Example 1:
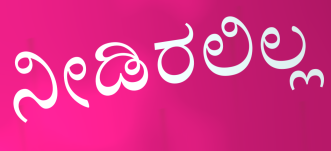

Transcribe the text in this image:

ನೀಡಿರಲಿಲ್ಲ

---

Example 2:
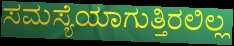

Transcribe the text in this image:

ಸಮಸ್ಯೆಯಾಗುತ್ತಿರಲಿಲ್ಲ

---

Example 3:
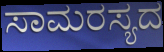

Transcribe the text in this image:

ಸಾಮರಸ್ಯದ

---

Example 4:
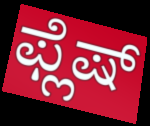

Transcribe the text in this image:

ಫ್ಲೆಷ್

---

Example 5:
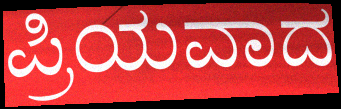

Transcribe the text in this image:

ಪ್ರಿಯವಾದ